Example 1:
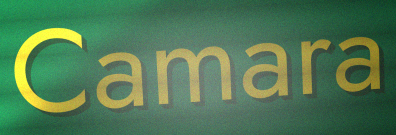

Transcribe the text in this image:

Camara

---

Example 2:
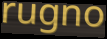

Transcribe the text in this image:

rugno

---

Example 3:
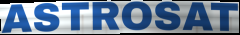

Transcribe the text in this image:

ASTROSAT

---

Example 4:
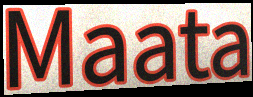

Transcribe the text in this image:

Maata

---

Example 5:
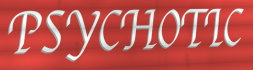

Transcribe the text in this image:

PSYCHOTIC